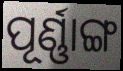
ପୂର୍ଣ୍ଣାଙ୍ଗ